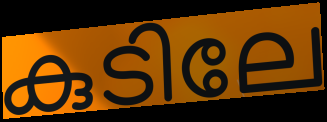
കുടിലേ